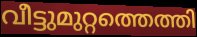
വീട്ടുമുറ്റത്തെത്തി